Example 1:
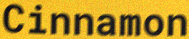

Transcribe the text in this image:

Cinnamon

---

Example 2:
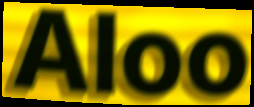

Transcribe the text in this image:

Aloo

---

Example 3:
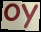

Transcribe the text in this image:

oy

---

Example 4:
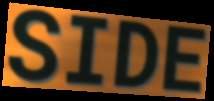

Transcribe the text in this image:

SIDE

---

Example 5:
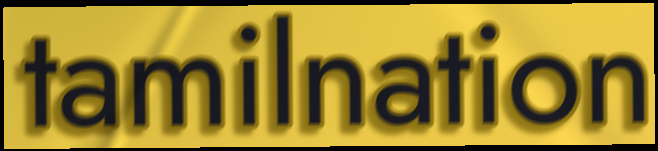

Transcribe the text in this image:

tamilnation